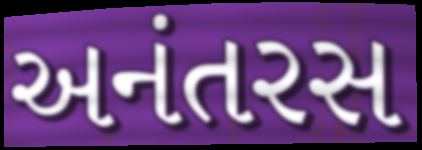
અનંતરસ